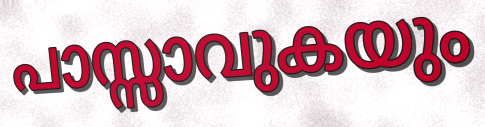
പാസ്സാവുകയും